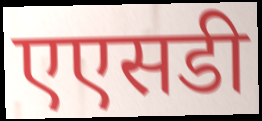
एएसडी